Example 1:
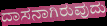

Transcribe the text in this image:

ದಾಸನಾಗಿರುವುದು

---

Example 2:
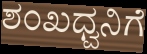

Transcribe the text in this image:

ಶಂಖಧ್ವನಿಗೆ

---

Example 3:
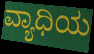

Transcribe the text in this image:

ವ್ಯಾಧಿಯ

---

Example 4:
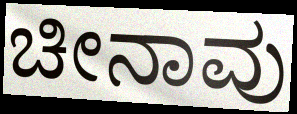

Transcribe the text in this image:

ಚೀನಾವು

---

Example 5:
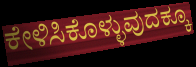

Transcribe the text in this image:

ಕೇಳಿಸಿಕೊಳ್ಳುವುದಕ್ಕೂ